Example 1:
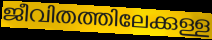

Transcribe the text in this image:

ജീവിതത്തിലേക്കുള്ള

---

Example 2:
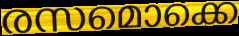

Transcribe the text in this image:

രസമൊക്കെ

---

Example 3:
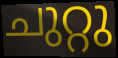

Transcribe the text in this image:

ചുറ്റു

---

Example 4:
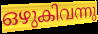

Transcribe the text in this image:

ഒഴുകിവന്നു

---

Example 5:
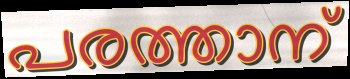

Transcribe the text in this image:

പരത്താന്